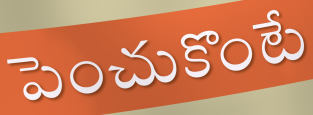
పెంచుకొంటే